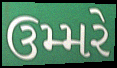
ઉમ્મરે